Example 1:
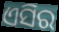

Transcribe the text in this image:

ଏସିର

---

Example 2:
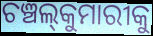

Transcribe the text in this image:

ଚଞ୍ଚଲ୍‍କୁମାରୀକୁ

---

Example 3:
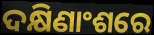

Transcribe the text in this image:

ଦକ୍ଷିଣାଂଶରେ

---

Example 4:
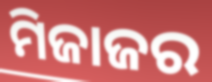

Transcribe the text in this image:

ମିଜାଜର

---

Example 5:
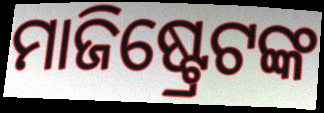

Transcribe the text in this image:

ମାଜିଷ୍ଟ୍ରେଟଙ୍କ